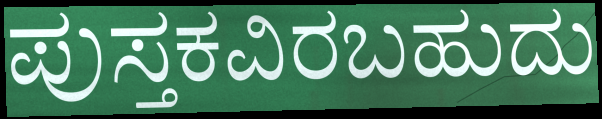
ಪುಸ್ತಕವಿರಬಹುದು